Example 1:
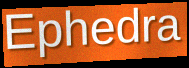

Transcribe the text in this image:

Ephedra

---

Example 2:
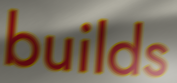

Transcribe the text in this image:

builds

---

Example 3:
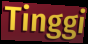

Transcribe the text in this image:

Tinggi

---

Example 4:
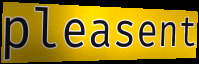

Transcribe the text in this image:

pleasent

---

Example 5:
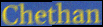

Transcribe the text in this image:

Chethan